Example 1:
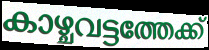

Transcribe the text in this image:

കാഴ്ചവട്ടത്തേക്ക്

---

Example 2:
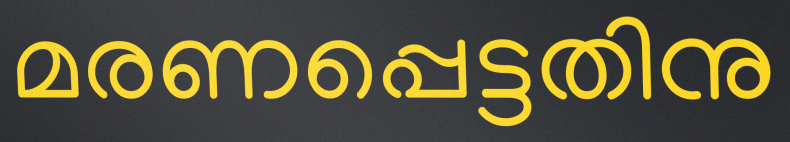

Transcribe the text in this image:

മരണപ്പെട്ടതിനു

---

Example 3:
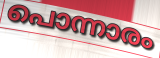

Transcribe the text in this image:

പൊന്നാരം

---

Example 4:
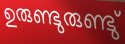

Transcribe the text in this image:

ഉരുണ്ടുരുണ്ടു്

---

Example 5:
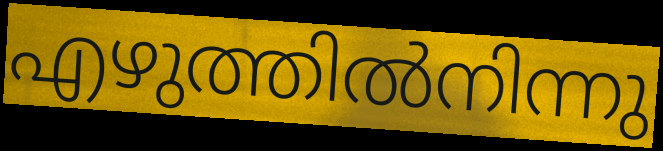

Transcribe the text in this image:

എഴുത്തിൽനിന്നു